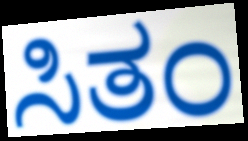
ಸಿತಂ